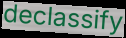
declassify